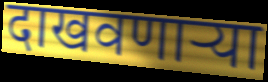
दाखवणाऱ्या